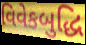
વિવેકબુદ્ધિ